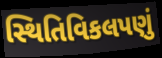
સ્થિતિવિકલપણું